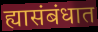
ह्यासंबंधात